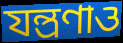
যন্ত্রণাও